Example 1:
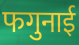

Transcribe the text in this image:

फगुनाई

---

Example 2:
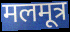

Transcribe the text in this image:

मलमूत्र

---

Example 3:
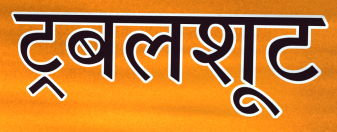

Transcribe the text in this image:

ट्रबलशूट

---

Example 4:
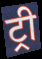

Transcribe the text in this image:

ट्री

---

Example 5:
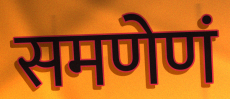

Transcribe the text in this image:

समणेणं